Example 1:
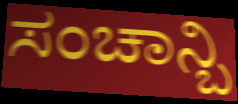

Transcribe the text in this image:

ಸಂಚಾನ್ಬಿ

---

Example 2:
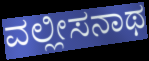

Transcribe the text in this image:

ವಲ್ಲೀಸನಾಥ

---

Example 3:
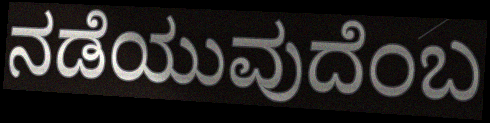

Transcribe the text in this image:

ನಡೆಯುವುದೆಂಬ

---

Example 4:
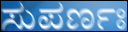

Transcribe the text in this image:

ಸುಪರ್ಣಃ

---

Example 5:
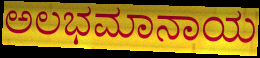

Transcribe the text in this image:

ಅಲಭಮಾನಾಯ